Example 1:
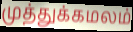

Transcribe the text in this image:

முத்துக்கமலம்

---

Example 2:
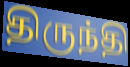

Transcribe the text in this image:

திருந்தி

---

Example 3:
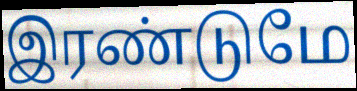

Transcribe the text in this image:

இரண்டுமே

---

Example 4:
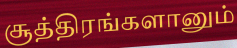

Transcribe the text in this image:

சூத்திரங்களானும்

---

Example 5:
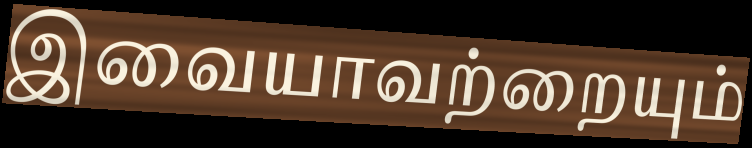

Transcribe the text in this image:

இவையாவற்றையும்